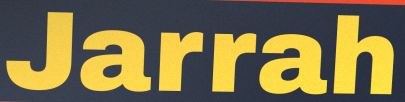
Jarrah